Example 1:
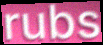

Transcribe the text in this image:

rubs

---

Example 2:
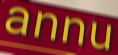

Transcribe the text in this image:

annu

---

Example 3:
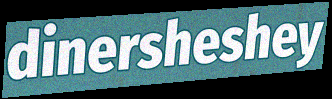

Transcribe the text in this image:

dinersheshey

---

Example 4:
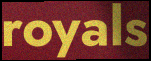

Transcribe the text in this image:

royals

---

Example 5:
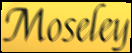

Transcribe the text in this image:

Moseley